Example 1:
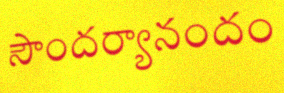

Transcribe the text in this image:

సౌందర్యానందం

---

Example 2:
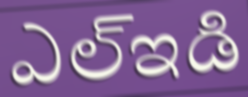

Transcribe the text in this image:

ఎల్ఇడి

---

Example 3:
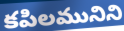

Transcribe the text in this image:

కపిలమునిని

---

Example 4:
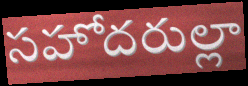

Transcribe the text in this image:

సహోదరుల్లా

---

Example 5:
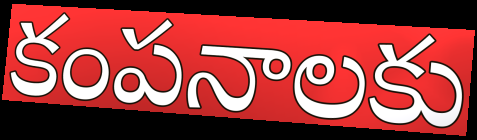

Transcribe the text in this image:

కంపనాలకు